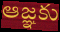
ఆజ్ఞకు